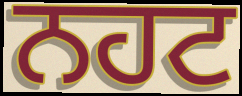
ਨਹਟ